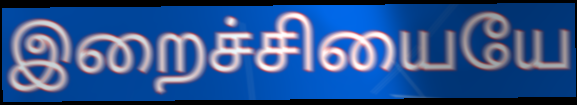
இறைச்சியையே